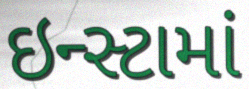
ઇન્સ્ટામાં